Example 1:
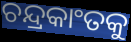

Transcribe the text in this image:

ଚନ୍ଦ୍ରକାଂତକୁ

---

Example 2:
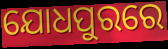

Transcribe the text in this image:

ଯୋଧପୁରରେ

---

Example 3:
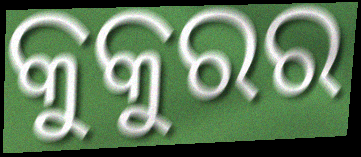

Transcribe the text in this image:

କୁକୁରର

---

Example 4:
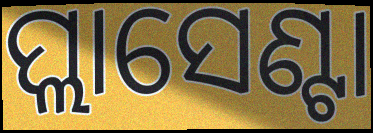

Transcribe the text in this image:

ପ୍ଲାସେଣ୍ଟା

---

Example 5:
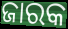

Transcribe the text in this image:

ଜାରକ